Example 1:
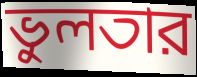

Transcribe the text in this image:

ভুলতার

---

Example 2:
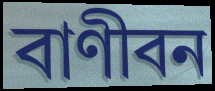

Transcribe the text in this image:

বাণীবন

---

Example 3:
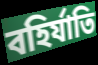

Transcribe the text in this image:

বহির্যাতি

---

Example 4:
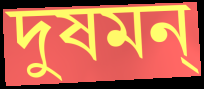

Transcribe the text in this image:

দুষমন্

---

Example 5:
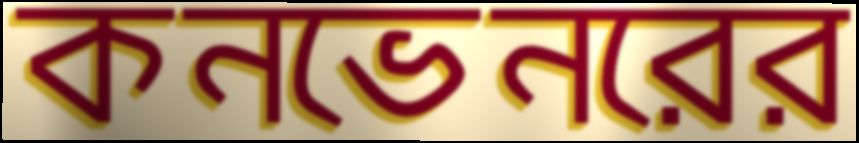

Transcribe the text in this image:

কনভেনরের